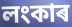
লংকাৰ